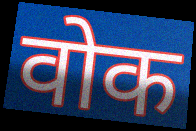
वोक